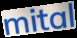
mital